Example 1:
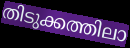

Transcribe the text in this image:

തിടുക്കത്തിലാ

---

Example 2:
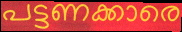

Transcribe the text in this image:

പട്ടണക്കാരെ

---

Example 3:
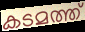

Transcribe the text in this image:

കടമത്ത്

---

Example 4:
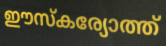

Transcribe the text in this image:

ഈസ്കര്യോത്ത്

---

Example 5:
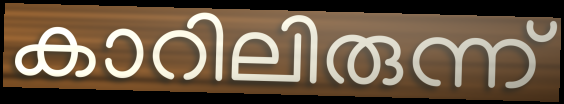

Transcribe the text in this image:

കാറിലിരുന്ന്